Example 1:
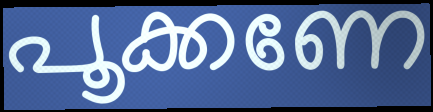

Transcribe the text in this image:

പൂക്കണേ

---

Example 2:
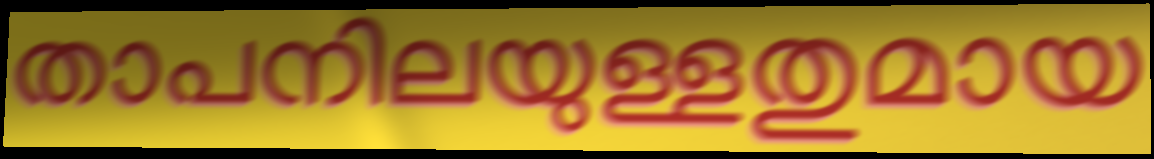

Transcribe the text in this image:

താപനിലയുള്ളതുമായ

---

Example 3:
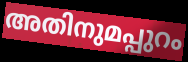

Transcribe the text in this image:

അതിനുമപ്പുറം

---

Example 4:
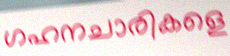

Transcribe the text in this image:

ഗഹനചാരികളെ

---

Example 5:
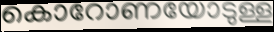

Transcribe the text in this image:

കൊറോണയോടുള്ള